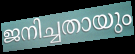
ജനിച്ചതായും